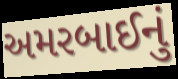
અમરબાઈનું